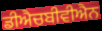
ਡੀਐਚਬੀਵੀਐਨ